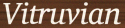
Vitruvian